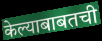
केल्याबाबतची